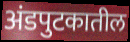
अंडपुटकातील